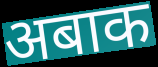
अबाक